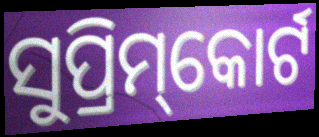
ସୁପ୍ରିମ୍‌କୋର୍ଟ